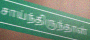
சாய்ந்திருந்தாள்